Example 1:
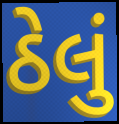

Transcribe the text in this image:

ઠેલું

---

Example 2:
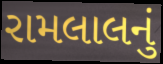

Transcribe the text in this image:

રામલાલનું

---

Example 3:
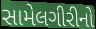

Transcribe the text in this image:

સામેલગીરીનો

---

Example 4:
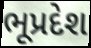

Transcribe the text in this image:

ભૂપ્રદેશ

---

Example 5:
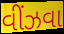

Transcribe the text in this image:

વીંઝવા